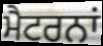
ਮੈਟਰਨਾਂ